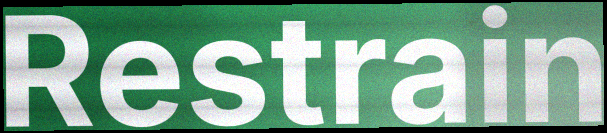
Restrain